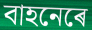
বাহনেৰে